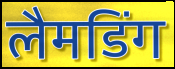
लैमडिंग